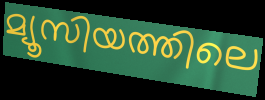
മ്യൂസിയത്തിലെ